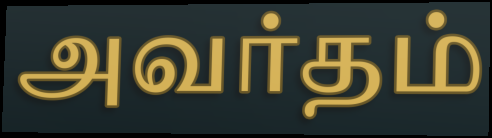
அவர்தம்